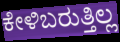
ಕೇಳಿಬರುತ್ತಿಲ್ಲ